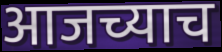
आजच्याच